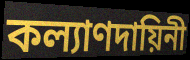
কল্যাণদায়িনী